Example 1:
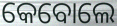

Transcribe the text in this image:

କେବୋଲେ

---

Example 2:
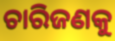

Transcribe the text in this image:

ଚାରିଜଣକୁ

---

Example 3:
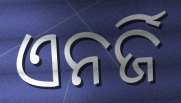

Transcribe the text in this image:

ଏନର୍ଜି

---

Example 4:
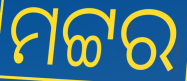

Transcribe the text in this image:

ମଟ୍ଟର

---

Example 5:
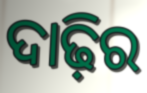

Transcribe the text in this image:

ଦାଢ଼ିର